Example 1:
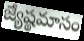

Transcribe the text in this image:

జ్యేష్ఠమాసం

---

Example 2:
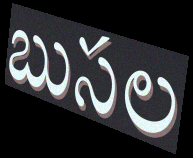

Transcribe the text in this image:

బుసల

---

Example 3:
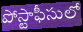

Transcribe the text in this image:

పోస్టాఫీసులో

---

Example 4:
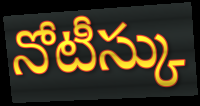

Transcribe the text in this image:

నోటీస్కు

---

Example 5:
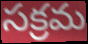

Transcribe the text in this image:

సక్రమ